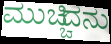
ಮುಚ್ಚಿದನು